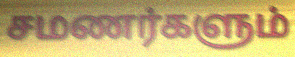
சமணர்களும்